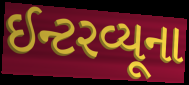
ઈન્ટરવ્યૂના